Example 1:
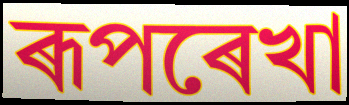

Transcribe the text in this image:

ৰূপৰেখা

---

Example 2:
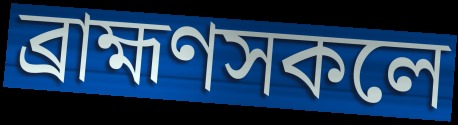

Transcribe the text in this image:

ব্ৰাহ্মণসকলে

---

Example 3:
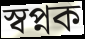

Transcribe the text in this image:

স্বপ্নক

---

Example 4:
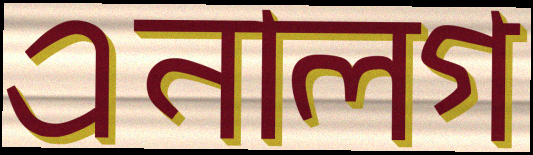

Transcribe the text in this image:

এনালগ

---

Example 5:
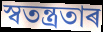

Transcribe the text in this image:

স্বতন্ত্ৰতাৰ